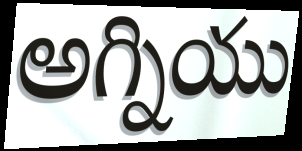
అగ్నియు